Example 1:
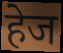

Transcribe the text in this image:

हेज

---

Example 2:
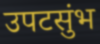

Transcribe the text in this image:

उपटसुंभ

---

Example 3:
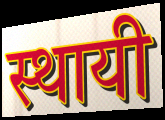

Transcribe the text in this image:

स्‍थायी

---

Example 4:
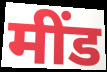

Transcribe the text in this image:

मींड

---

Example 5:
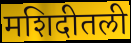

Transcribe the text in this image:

मशिदीतली